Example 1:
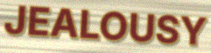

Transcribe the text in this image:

JEALOUSY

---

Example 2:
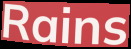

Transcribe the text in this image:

Rains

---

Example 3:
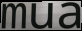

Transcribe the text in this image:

mua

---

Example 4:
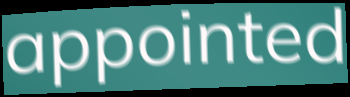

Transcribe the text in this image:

appointed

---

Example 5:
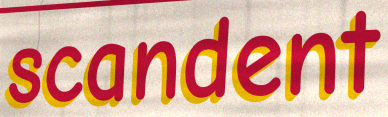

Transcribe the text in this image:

scandent